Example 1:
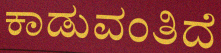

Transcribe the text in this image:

ಕಾಡುವಂತಿದೆ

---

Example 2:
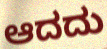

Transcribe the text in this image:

ಆದದು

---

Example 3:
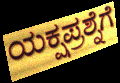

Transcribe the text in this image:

ಯಕ್ಷಪ್ರಶ್ನೆಗೆ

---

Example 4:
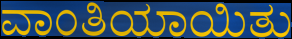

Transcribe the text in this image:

ವಾಂತಿಯಾಯಿತು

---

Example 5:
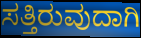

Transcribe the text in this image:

ಸತ್ತಿರುವುದಾಗಿ